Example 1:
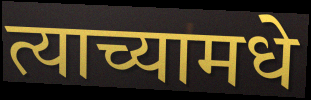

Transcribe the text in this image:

त्याच्यामधे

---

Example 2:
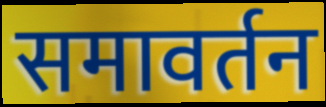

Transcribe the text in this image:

समावर्तन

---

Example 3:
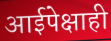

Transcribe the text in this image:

आईपेक्षाही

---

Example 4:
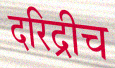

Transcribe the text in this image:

दरिद्रीच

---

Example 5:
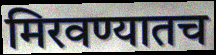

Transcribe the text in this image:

मिरवण्यातच